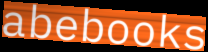
abebooks